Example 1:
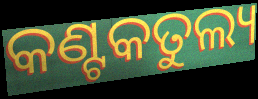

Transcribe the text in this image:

କଣ୍ଟକତୁଲ୍ୟ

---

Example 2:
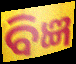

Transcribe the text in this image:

ବିଜ୍ଞ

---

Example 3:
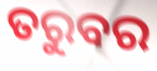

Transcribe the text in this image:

ତରୁବର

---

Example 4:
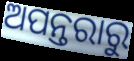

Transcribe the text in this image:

ଅପନ୍ତରାରୁ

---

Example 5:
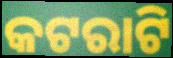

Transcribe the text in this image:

କଟରାଟି